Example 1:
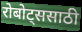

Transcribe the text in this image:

रोबोट्ससाठी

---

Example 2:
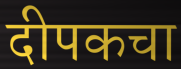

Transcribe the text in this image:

दीपकचा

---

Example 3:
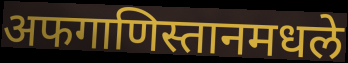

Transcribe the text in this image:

अफगाणिस्तानमधले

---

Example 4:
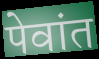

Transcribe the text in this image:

पेवांत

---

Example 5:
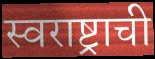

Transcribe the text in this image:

स्वराष्ट्राची